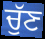
ਚੁੱਣ